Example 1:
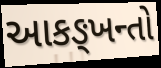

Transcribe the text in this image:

આકઙ્ખન્તો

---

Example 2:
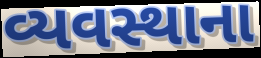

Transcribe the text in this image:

વ્યવસ્થાના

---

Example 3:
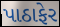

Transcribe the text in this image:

પાઠાફેર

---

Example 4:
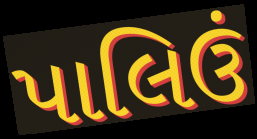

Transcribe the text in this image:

પાલિઉં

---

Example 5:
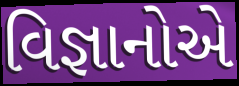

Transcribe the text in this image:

વિજ્ઞાનોએ